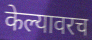
केल्यावरच